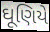
ઘૂણિયે